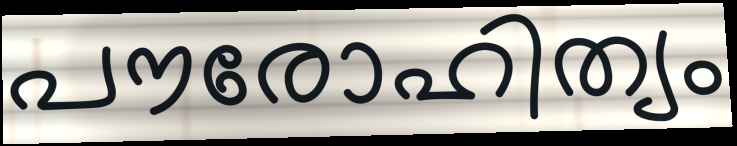
പൗരോഹിത്യം